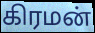
கிரமன்